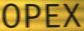
OPEX